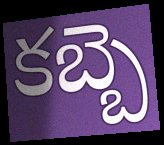
కబ్బె